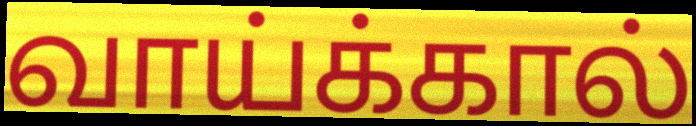
வாய்க்கால்